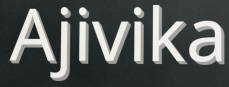
Ajivika